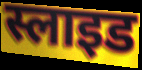
स्लाइड